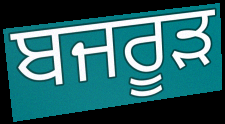
ਬਜਰੂੜ